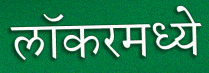
लॉकरमध्ये